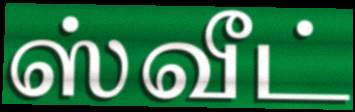
ஸ்வீட்